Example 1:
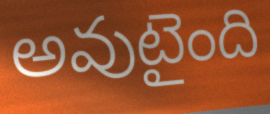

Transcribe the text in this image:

అవుటైంది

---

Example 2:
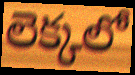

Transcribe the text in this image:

లెక్కలో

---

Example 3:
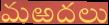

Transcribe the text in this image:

మఱదలు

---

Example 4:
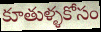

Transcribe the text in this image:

కూతుళ్ళకోసం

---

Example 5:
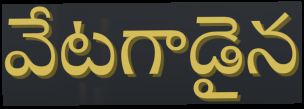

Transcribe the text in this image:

వేటగాడైన